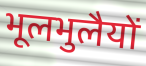
भूलभुलैयों